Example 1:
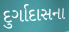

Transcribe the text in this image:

દુર્ગાદાસના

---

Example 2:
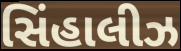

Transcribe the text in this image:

સિંહાલીઝ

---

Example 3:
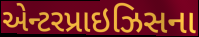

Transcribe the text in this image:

એન્ટરપ્રાઇઝિસના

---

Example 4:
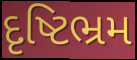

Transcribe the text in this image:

દૃષ્ટિભ્રમ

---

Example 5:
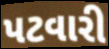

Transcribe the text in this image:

પટવારી